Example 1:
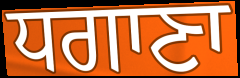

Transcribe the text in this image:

ਧਗਾਣਾ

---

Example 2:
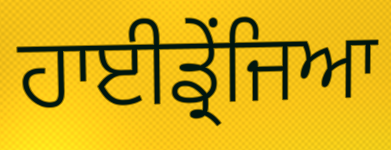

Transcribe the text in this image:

ਹਾਈਡ੍ਰੇਂਜਿਆ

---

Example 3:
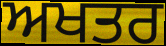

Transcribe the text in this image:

ਅਖਤਰ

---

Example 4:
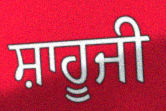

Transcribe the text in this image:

ਸ਼ਾਹੂਜੀ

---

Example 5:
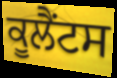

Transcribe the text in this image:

ਕੂਲੈਂਟਸ